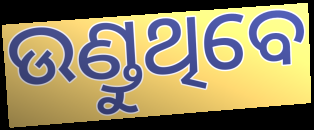
ଉଣ୍ଡୁଥିବେ